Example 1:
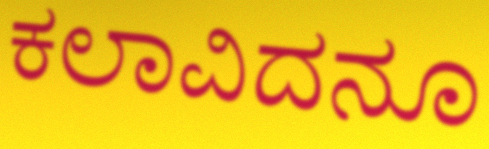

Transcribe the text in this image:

ಕಲಾವಿದನೂ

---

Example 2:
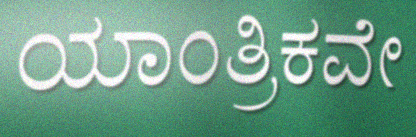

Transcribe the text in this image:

ಯಾಂತ್ರಿಕವೇ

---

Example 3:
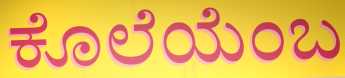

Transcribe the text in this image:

ಕೊಲೆಯೆಂಬ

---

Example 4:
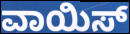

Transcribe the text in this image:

ವಾಯಿಸ್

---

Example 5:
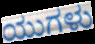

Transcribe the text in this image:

ಯುಗಳು